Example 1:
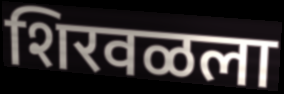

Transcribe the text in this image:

शिरवळला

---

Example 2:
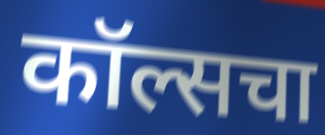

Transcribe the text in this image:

कॉल्सचा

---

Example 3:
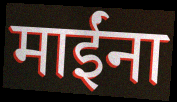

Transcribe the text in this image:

माईंना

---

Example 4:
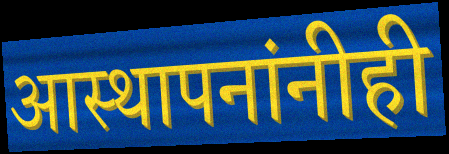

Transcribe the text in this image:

आस्थापनांनीही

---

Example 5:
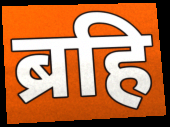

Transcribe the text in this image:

ब्रहि